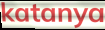
katanya